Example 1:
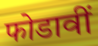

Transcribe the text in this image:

फोडावीं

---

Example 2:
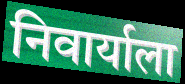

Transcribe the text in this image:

निवार्याला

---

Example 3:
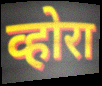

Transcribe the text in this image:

व्होरा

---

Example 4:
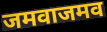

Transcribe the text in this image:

जमवाजमव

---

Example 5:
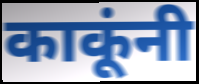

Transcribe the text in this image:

काकूंनी